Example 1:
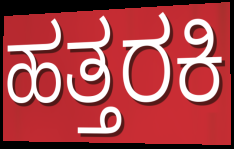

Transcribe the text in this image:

ಹತ್ತರಕಿ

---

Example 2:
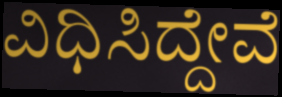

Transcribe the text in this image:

ವಿಧಿಸಿದ್ದೇವೆ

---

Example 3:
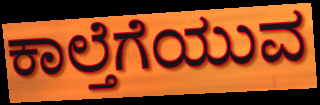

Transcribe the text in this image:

ಕಾಲ್ತೆಗೆಯುವ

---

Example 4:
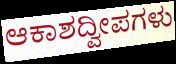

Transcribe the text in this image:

ಆಕಾಶದ್ವೀಪಗಳು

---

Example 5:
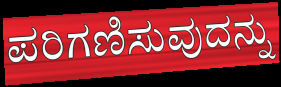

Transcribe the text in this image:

ಪರಿಗಣಿಸುವುದನ್ನು